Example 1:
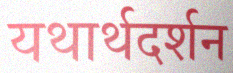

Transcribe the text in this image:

यथार्थदर्शन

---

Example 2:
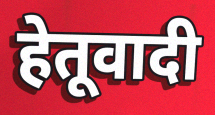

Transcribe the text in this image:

हेतूवादी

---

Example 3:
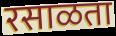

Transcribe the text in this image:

रसाळता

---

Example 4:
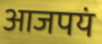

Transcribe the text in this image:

आजपयं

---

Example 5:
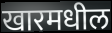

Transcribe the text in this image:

खारमधील